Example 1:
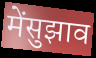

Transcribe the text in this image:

मेंसुझाव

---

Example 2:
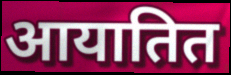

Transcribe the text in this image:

आयातित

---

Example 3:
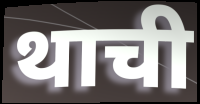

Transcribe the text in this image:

थाची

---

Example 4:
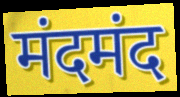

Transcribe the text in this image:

मंदमंद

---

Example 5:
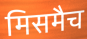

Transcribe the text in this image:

मिसमैच